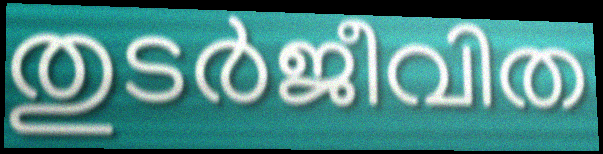
തുടർജീവിത